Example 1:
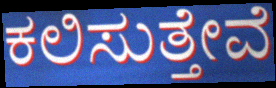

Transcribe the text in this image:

ಕಲಿಸುತ್ತೇವೆ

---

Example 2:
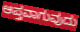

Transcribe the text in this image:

ಆಪ್ತವಾಗುವುದು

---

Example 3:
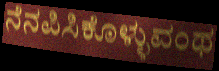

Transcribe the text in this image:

ನೆನಪಿಸಿಕೊಳ್ಳುವಂಥ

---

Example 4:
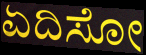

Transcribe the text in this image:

ಏದಿಸೋ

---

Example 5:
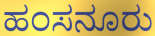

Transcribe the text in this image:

ಹಂಸನೂರು